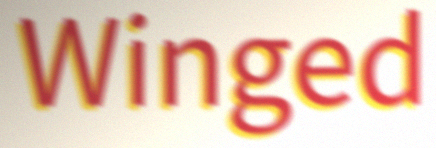
Winged